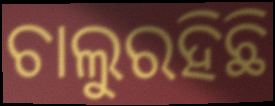
ଚାଲୁରହିଛି